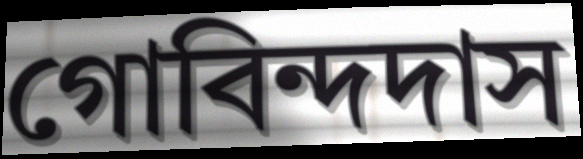
গোবিন্দদাস